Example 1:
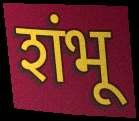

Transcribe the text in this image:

शंभू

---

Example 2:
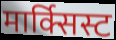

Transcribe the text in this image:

मार्क्सिस्ट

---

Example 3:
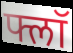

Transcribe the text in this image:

फ्लॉ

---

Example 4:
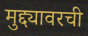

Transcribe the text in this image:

मुद्द्यावरची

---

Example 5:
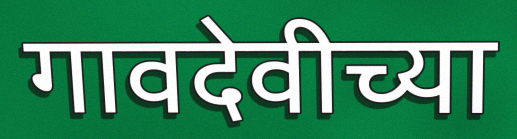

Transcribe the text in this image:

गावदेवीच्या